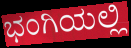
ಭಂಗಿಯಲ್ಲಿ